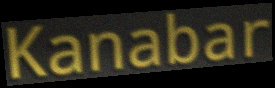
Kanabar